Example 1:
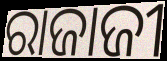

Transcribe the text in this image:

ରାଜାଜୀ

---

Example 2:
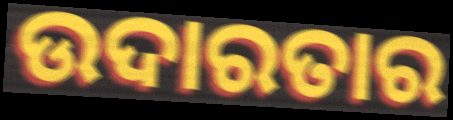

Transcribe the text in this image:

ଉଦାରତାର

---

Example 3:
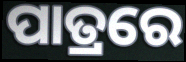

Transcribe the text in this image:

ପାତ୍ରରେ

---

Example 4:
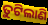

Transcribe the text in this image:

ତୁଟିଲାଣି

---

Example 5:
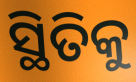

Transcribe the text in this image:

ସ୍ଥିତିକୁ